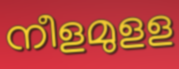
നീളമുളള